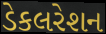
ડેકલરેશન